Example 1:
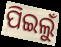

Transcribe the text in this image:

ପିଇଲୁଁ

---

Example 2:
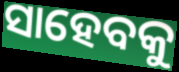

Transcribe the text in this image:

ସାହେବକୁ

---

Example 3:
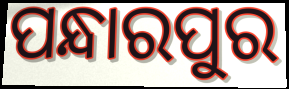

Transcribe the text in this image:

ପନ୍ଧାରପୁର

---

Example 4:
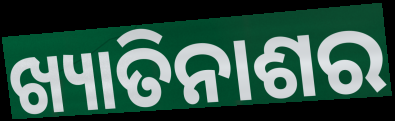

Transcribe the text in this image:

ଖ୍ୟାତିନାଶର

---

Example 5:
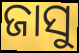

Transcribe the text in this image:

ଜାସୁ